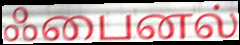
ஃபைனல்